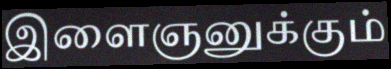
இளைஞனுக்கும்